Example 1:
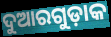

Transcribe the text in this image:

ଦୁଆରଗୁଡ଼ାକ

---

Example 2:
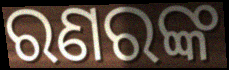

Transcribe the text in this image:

ରଣରଙ୍କ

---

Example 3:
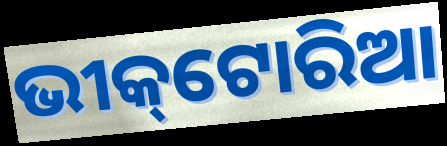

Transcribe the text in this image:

ଭୀକ୍‌ଟୋରିଆ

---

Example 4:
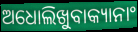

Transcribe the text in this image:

ଅଧୋଲିଖୁବାକ୍ୟାନାଂ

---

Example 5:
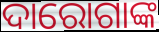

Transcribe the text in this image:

ଦାରୋଗାଙ୍କ